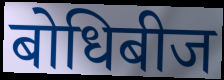
बोधिबीज